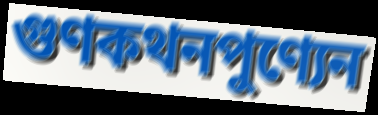
গুণকথনপুণ্যেন